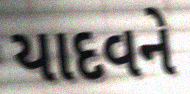
યાદવને